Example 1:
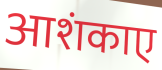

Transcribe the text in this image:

आशंकाए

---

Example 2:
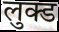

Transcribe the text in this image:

लुक्ड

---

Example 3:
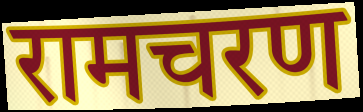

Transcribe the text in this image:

रामचरण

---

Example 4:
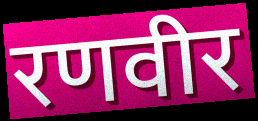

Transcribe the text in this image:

रणवीर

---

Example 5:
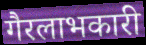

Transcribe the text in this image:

गैरलाभकारी